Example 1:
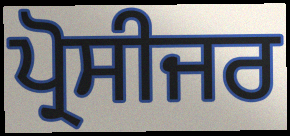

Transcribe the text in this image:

ਪ੍ਰੋਸੀਜਰ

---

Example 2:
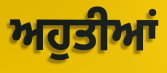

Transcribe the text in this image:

ਅਹੁਤੀਆਂ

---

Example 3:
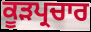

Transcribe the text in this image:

ਕੂੜਪ੍ਰਚਾਰ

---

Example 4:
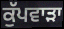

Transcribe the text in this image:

ਕੁੱਪਵਾੜਾ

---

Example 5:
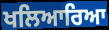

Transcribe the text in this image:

ਖਲਿਆਰਿਆ